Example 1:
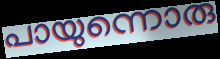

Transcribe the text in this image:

പായുന്നൊരു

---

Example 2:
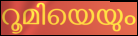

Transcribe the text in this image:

റൂമിയെയും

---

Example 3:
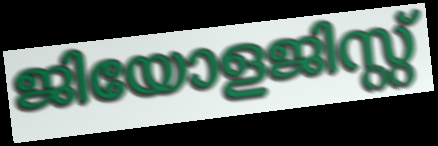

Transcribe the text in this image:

ജിയോളജിസ്റ്റ്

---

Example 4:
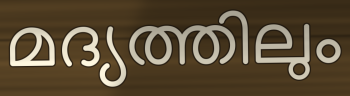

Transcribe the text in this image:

മദ്യത്തിലും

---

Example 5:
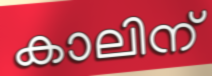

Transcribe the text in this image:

കാലിന്